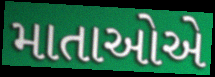
માતાઓએ